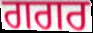
ਗਗਰ